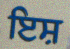
ਇਸ਼